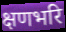
क्षणभरि